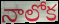
నాలోక